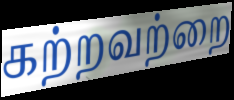
கற்றவற்றை